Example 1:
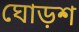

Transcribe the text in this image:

ঘোড়শ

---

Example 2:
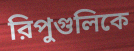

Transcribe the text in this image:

রিপুগুলিকে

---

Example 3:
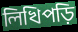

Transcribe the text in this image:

লিখিপড়ি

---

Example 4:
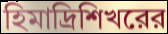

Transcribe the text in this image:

হিমাদ্রিশিখরের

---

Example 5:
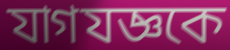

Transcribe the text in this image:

যাগযজ্ঞকে